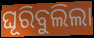
ଘୂରିବୁଲିଲା